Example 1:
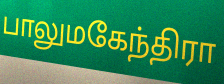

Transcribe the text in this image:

பாலுமகேந்திரா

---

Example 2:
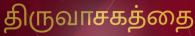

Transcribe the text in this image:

திருவாசகத்தை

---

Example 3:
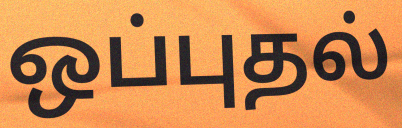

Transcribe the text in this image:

ஒப்புதல்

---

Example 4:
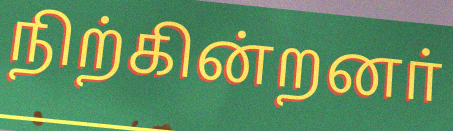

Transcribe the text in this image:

நிற்கின்றனர்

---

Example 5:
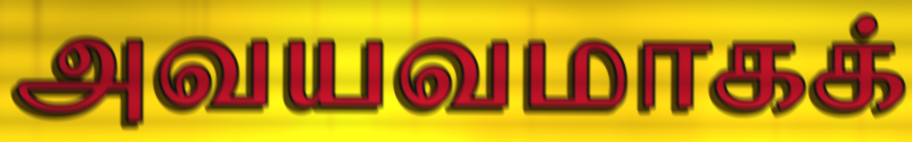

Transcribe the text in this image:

அவயவமாகக்